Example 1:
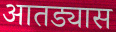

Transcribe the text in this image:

आतड्यास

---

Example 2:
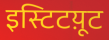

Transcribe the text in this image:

इस्टिटय़ूट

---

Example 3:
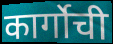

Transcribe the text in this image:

कार्गोची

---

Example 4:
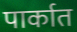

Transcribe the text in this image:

पार्कात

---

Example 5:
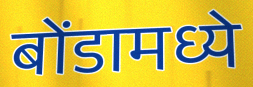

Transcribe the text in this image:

बोंडामध्ये